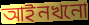
আইনখনো